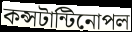
কন্সটান্টিনোপল